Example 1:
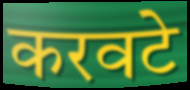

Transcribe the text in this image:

करवटे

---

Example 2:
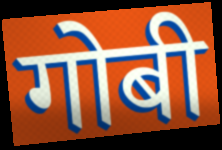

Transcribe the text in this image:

गोबी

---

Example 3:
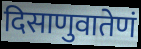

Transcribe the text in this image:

दिसाणुवातेणं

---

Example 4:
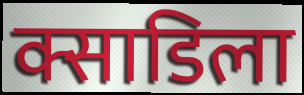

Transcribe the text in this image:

क्साडिला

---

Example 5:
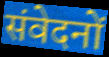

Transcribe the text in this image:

संवेदनों